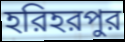
হরিহরপুর